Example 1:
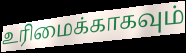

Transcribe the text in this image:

உரிமைக்காகவும்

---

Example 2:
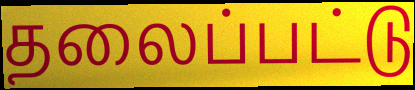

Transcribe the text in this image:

தலைப்பட்டு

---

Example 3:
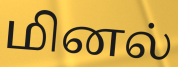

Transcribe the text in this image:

மினல்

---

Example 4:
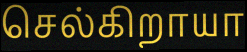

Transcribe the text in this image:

செல்கிறாயா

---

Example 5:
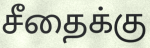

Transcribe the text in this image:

சீதைக்கு